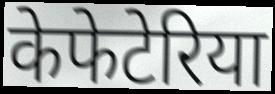
केफेटेरिया